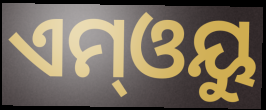
ଏମ୍ଓୟୁ